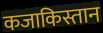
कजाकिस्तान